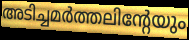
അടിച്ചമർത്തലിന്റേയും